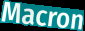
Macron